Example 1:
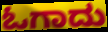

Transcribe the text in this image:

ಓಗಾದು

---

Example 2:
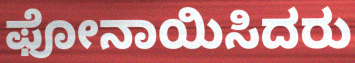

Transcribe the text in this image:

ಫೋನಾಯಿಸಿದರು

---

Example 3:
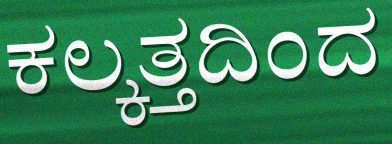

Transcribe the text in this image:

ಕಲ್ಕತ್ತದಿಂದ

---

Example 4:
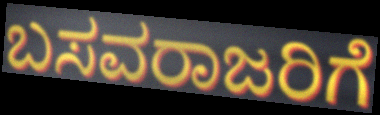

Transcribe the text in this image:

ಬಸವರಾಜರಿಗೆ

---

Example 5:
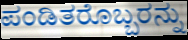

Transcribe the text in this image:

ಪಂಡಿತರೊಬ್ಬರನ್ನು